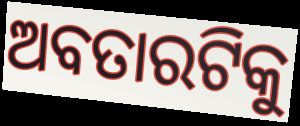
ଅବତାରଟିକୁ